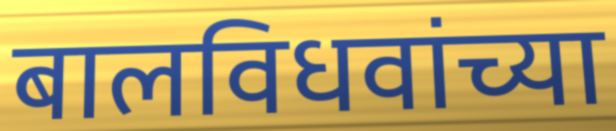
बालविधवांच्या